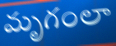
మృగంలా